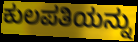
ಕುಲಪತಿಯನ್ನು